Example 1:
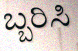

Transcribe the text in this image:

ಬ್ಬರಿಸಿ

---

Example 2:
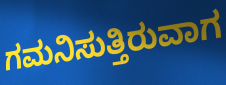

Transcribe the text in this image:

ಗಮನಿಸುತ್ತಿರುವಾಗ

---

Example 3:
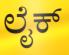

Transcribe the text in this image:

ಲೈಕ್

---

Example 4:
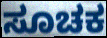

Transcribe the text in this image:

ಸೂಚಕ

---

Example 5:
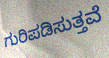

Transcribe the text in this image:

ಗುರಿಪಡಿಸುತ್ತವೆ